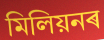
মিলিয়নৰ